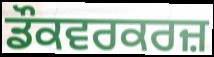
ਡੌਕਵਰਕਰਜ਼